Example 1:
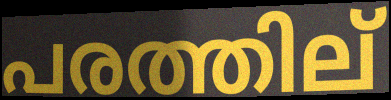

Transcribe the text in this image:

പരത്തില്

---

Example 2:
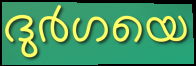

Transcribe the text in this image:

ദുർഗയെ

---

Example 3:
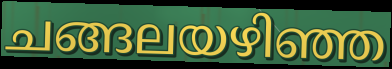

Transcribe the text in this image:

ചങ്ങലയഴിഞ്ഞ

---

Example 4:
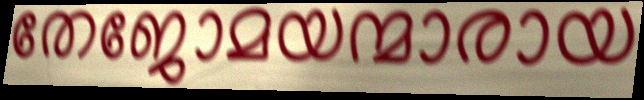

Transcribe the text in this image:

തേജോമയന്മാരായ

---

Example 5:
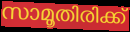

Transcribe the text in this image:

സാമൂതിരിക്ക്